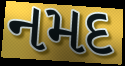
નમદ